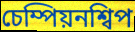
চেম্পিয়নশ্বিপ